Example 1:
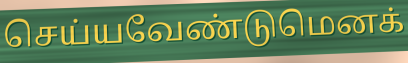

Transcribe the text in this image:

செய்யவேண்டுமெனக்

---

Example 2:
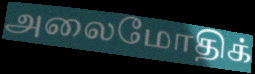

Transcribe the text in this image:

அலைமோதிக்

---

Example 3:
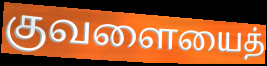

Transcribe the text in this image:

குவளையைத்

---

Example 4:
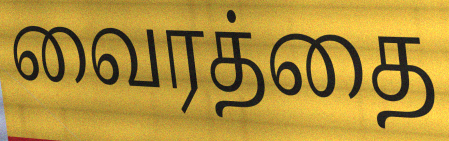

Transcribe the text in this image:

வைரத்தை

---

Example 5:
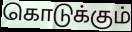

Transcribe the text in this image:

கொடுக்கும்